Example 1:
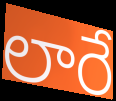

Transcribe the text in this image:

లారే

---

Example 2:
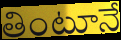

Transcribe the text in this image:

తింటూనే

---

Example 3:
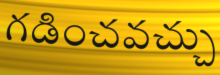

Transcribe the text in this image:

గడించవచ్చు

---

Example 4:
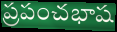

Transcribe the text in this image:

ప్రపంచభాష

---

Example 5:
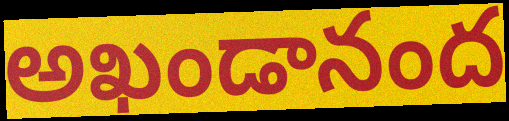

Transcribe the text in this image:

అఖండానంద